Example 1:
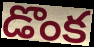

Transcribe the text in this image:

డొంక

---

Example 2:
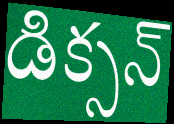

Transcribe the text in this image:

డిక్సన్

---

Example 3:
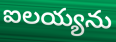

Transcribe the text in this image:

ఐలయ్యను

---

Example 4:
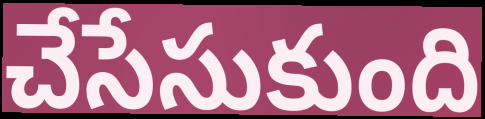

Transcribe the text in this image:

చేసేసుకుంది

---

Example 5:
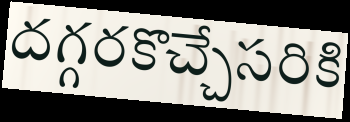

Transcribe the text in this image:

దగ్గరకొచ్చేసరికి